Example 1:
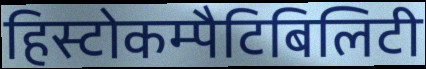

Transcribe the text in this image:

हिस्टोकम्पैटिबिलिटी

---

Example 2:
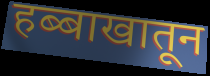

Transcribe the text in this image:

हब्बाखातून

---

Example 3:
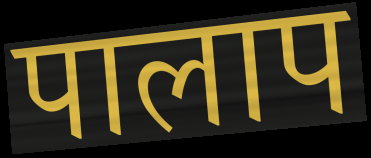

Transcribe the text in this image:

पालाप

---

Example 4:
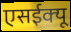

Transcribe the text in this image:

एसईक्यू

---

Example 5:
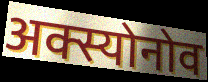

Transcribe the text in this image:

अक्स्योनोव